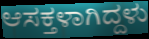
ಆಸಕ್ತಳಾಗಿದ್ದಳು